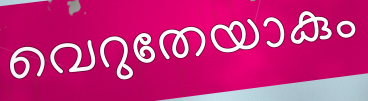
വെറുതേയാകും